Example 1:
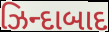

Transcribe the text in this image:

ઝિન્દાબાદ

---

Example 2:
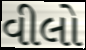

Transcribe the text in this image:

વીલો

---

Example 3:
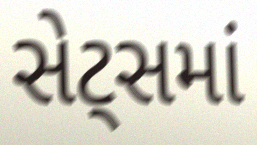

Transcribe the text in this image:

સેટ્સમાં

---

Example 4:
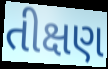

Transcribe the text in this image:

તીક્ષણ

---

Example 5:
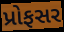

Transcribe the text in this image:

પ્રોફસર